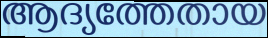
ആദ്യത്തേതായ